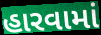
હારવામાં